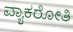
ವ್ಯಾಕರೋತಿ